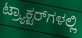
ಟ್ರ್ಯಾಕ್ಟರ್‌ಗಳಲ್ಲಿ